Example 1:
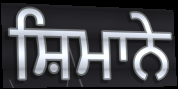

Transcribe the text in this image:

ਸ਼ਿਮਾਨੇ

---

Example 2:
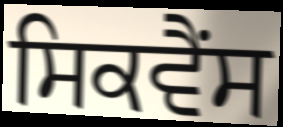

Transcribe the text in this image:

ਸਿਕਵੈਂਸ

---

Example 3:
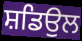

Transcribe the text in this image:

ਸ਼ਡਿਉਲ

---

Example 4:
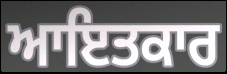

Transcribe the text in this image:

ਆਇਤਕਾਰ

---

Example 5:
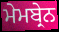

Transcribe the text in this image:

ਮੇਮਬ੍ਰੇਨ